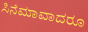
ಸಿನೆಮಾವಾದರೂ